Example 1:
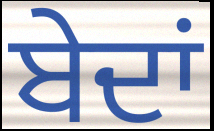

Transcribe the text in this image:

ਬੇਦਾਂ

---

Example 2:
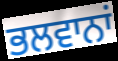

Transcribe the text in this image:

ਭਲਵਾਨਾਂ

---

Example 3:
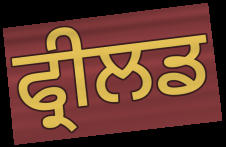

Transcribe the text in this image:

ਫ੍ਰੀਲਡ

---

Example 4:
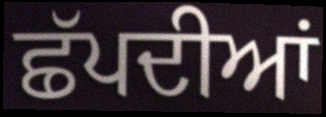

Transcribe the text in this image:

ਛੱਪਦੀਆਂ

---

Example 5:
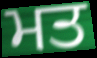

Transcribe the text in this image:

ਮਤ